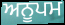
ਅਨੂਪਮ